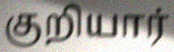
குறியார்